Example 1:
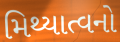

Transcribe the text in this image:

મિથ્યાત્વનો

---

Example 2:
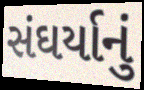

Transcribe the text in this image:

સંઘર્યાનું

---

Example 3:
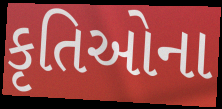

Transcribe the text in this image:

કૃતિઓના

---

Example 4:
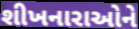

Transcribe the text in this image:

શીખનારાઓને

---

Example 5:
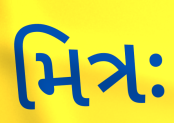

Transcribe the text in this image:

મિત્રઃ